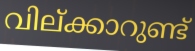
വില്ക്കാറുണ്ട്